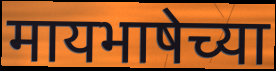
मायभाषेच्या